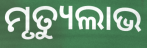
ମୃତ୍ୟୁଲାଭ